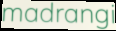
madrangi